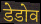
डेडोव